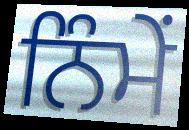
ਨਿੰਮੇਂ